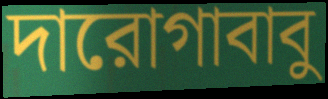
দারোগাবাবু